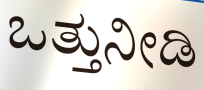
ಒತ್ತುನೀಡಿ